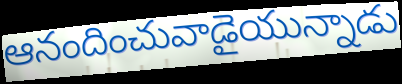
ఆనందించువాడైయున్నాడు